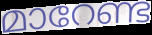
മാറേണ്ട